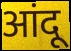
आंदू